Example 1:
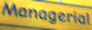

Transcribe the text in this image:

Managerial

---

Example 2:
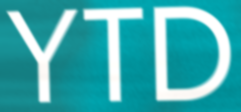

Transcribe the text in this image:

YTD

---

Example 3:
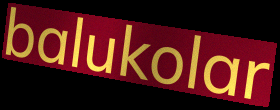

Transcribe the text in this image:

balukolar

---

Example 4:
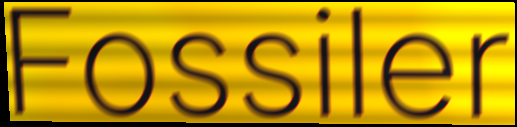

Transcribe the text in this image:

Fossiler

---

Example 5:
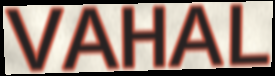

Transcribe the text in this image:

VAHAL